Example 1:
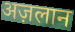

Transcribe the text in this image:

अज़लान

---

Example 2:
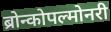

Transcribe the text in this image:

ब्रोन्कोपल्मोनरी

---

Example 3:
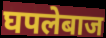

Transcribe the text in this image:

घपलेबाज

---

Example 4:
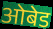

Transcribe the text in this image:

ओबेड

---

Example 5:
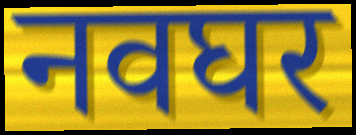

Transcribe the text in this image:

नवघर